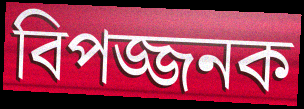
বিপজ্জনক